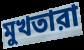
মুখতারা